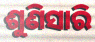
ଶୁଣିସାରି